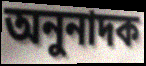
অনুনাদক